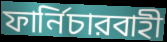
ফার্নিচারবাহী